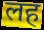
लह